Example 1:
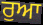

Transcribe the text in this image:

ਰੁਆ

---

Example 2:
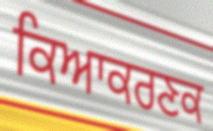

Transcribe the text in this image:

ਕਿਆਕਰਣਕ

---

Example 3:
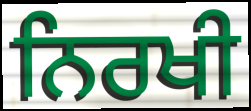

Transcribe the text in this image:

ਨਿਰਖੀ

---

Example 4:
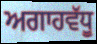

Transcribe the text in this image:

ਅਗਾਹਵੱਧੂ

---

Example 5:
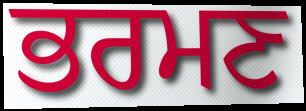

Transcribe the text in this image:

ਭਰਮਣ